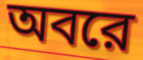
অবরে